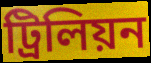
ট্ৰিলিয়ন